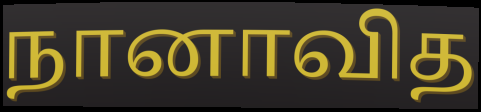
நானாவித